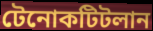
টেনোকটিটলান